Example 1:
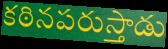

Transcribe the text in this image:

కఠినపరుస్తాడు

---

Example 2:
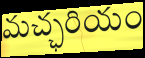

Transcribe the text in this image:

మచ్ఛరియం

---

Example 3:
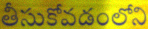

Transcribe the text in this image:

తీసుకోవడంలోని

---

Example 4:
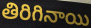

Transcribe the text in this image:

తిరిగినాయి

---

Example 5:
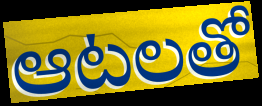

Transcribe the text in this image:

ఆటలతో